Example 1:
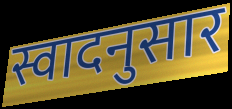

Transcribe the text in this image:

स्वादनुसार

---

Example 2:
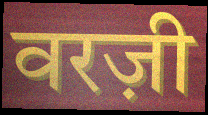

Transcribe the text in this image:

वरज़ी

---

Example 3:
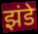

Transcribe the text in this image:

झंडे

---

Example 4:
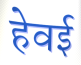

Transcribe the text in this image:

हेवई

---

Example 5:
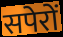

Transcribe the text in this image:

सपेरों